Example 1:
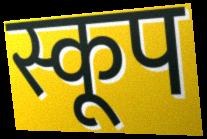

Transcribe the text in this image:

स्कूप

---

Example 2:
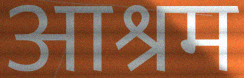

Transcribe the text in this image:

आश्रम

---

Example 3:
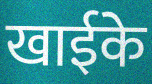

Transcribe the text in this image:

खाईके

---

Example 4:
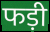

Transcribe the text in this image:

फड़ी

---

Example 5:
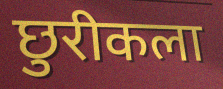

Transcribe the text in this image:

छुरीकला